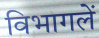
विभागलें